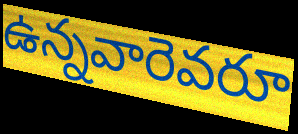
ఉన్నవారెవరూ